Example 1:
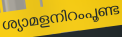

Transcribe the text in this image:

ശ്യാമളനിറംപൂണ്ട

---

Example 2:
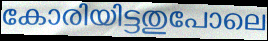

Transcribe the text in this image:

കോരിയിട്ടതുപോലെ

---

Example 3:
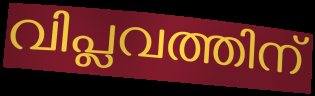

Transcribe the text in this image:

വിപ്ലവത്തിന്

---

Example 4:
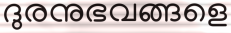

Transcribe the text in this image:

ദുരനുഭവങ്ങളെ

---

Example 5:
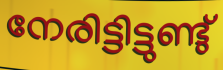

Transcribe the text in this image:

നേരിട്ടിട്ടുണ്ടു്